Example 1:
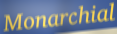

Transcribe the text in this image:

Monarchial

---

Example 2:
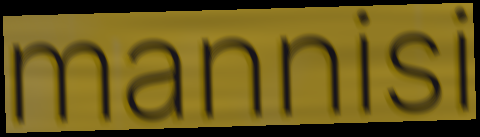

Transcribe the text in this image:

mannisi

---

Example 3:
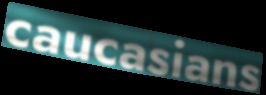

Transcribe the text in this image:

caucasians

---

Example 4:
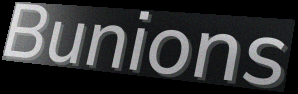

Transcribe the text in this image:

Bunions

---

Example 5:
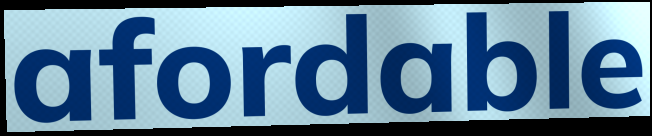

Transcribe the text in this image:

afordable